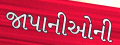
જાપાનીઓની